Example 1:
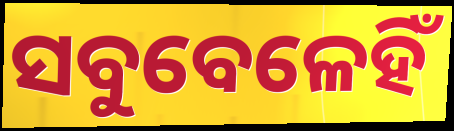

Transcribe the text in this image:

ସବୁବେଳେହିଁ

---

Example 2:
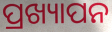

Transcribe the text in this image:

ପ୍ରଖ୍ୟାପନ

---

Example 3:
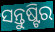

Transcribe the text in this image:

ସନ୍ତୁଷ୍ଟିର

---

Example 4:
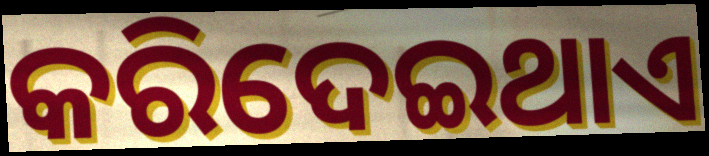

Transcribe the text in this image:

କରିଦେଇଥାଏ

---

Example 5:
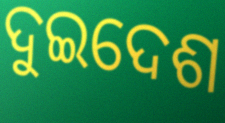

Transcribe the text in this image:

ଦୁଇଦେଶ